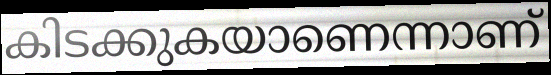
കിടക്കുകയാണെന്നാണ്